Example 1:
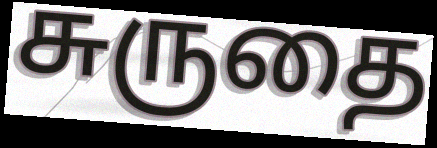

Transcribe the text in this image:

சுருதை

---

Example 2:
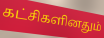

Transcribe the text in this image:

கட்சிகளினதும்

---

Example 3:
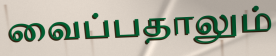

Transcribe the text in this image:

வைப்பதாலும்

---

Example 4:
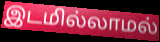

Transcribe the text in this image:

இடமில்லாமல்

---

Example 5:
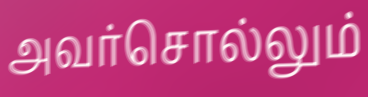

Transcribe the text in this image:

அவர்சொல்லும்